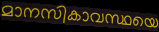
മാനസികാവസ്ഥയെ